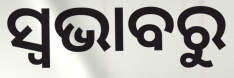
ସ୍ୱଭାବରୁ